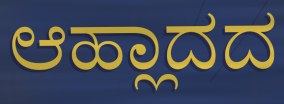
ಆಹ್ಲಾದದ